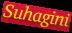
Suhagini